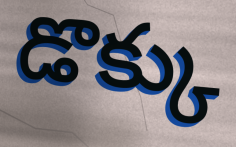
డొక్కు